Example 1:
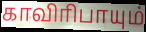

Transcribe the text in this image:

காவிரிபாயும்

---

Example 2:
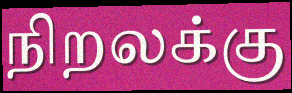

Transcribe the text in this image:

நிறலக்கு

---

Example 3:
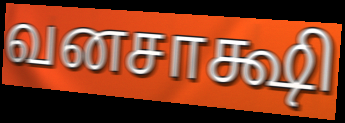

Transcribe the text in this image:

வனசாக்ஷி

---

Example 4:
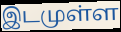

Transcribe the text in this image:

இடமுள்ள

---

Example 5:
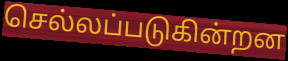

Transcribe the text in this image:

செல்லப்படுகின்றன